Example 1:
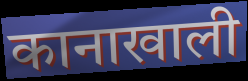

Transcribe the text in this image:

कानाखाली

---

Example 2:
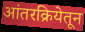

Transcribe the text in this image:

आंतरक्रियेतून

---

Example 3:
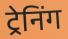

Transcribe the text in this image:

ट्रेनिंग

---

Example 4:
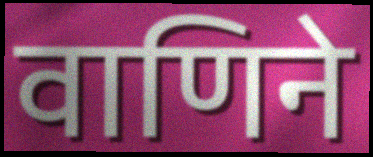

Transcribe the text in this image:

वाणिने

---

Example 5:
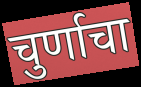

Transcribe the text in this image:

चुर्णाचा